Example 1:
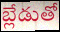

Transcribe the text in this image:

బ్లేడుతో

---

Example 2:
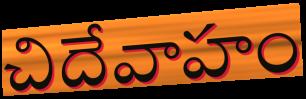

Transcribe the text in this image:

చిదేవాహం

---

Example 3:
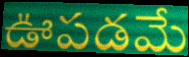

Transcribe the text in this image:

ఊపడమే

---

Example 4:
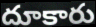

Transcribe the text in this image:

దూకారు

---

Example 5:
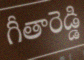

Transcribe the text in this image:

గీతారెడ్డి